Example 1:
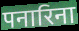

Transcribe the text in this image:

पनारिना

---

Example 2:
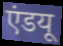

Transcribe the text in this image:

एंडयू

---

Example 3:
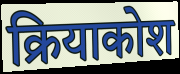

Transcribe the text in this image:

क्रियाकोश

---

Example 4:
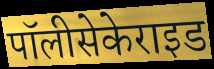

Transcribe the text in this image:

पॉलीसेकेराइड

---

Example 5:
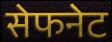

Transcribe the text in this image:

सेफनेट